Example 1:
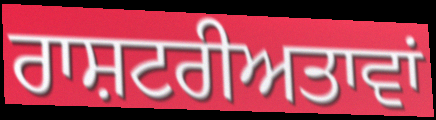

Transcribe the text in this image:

ਰਾਸ਼ਟਰੀਅਤਾਵਾਂ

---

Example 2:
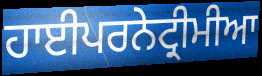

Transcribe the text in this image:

ਹਾਈਪਰਨੇਟ੍ਰੀਮੀਆ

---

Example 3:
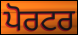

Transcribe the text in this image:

ਪੋਰਟਰ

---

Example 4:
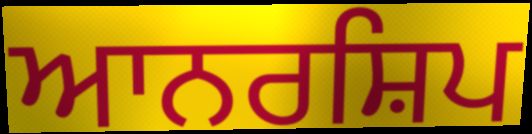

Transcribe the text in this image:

ਆਨਰਸ਼ਿਪ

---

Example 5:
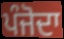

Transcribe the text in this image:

ਪੰਜੋਦਾ